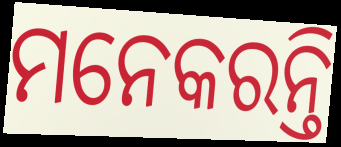
ମନେକରନ୍ତି